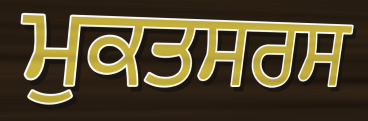
ਮੁਕਤਸਰਸ